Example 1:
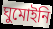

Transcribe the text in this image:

ঘুমোইনি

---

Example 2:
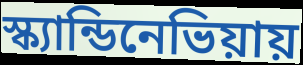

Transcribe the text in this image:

স্ক্যান্ডিনেভিয়ায়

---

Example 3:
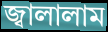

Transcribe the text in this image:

জ্বালালাম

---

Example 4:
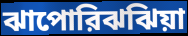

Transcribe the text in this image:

ঝাপোরিঝঝিয়া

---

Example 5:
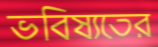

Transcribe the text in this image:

ভবিষ্যতের